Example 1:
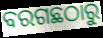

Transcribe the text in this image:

ବରଗଛଠାରୁ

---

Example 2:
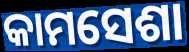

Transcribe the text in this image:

କାମସେଶା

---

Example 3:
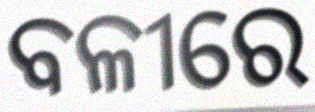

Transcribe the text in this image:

ବଳୀରେ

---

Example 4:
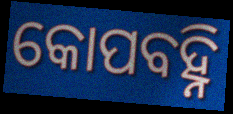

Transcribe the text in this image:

କୋପବହ୍ନି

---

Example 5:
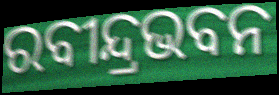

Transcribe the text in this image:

ରବୀନ୍ଦ୍ରଭବନ